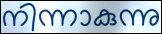
നിന്നാകുന്നു